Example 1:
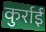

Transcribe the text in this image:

कुर्राई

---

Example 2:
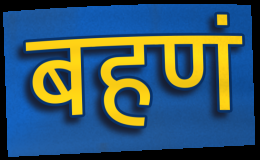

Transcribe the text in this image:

बहणं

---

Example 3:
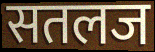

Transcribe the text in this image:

सतलज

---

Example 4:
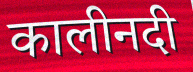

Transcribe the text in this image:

कालीनदी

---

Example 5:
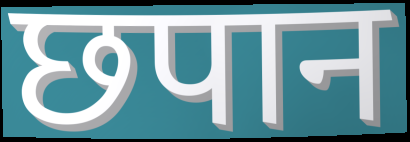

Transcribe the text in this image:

छपान